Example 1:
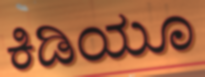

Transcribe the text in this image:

ಕಿಡಿಯೂ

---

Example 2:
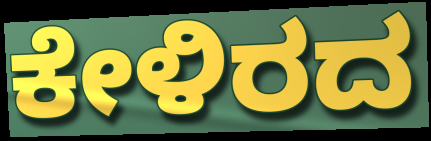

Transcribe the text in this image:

ಕೇಳಿರದ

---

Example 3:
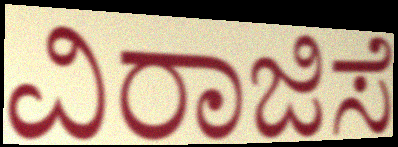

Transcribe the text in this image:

ವಿರಾಜಿಸೆ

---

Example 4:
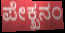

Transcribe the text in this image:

ಪೇಕ್ಖನಂ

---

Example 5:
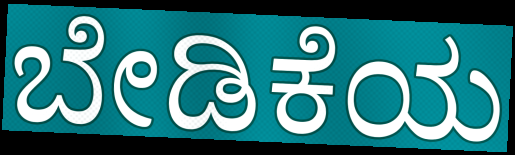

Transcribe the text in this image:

ಬೇಡಿಕೆಯ